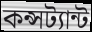
কন্সট্যান্ট